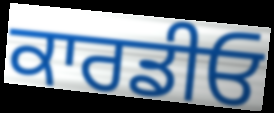
ਕਾਰਡੀਓ